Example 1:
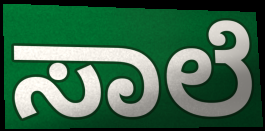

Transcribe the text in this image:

ಸಾಲೆ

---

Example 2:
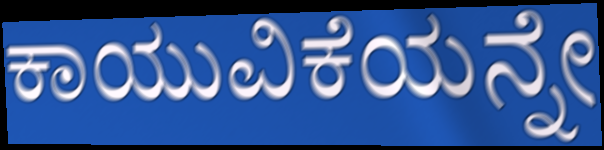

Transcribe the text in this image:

ಕಾಯುವಿಕೆಯನ್ನೇ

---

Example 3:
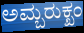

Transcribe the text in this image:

ಅಮ್ಬರುಕ್ಖಂ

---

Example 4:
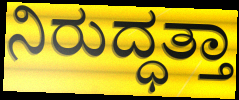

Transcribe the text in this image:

ನಿರುದ್ಧತ್ತಾ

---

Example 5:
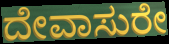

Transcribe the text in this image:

ದೇವಾಸುರೇ